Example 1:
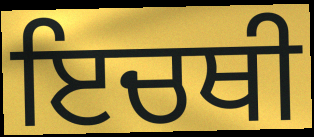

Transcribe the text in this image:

ਇਚਥੀ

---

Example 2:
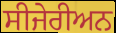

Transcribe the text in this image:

ਸੀਜੇਰੀਅਨ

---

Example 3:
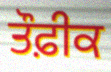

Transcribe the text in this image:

ਤੌਫ਼ੀਕ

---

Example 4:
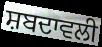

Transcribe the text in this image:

ਸ਼ਬਦਾਵਲੀ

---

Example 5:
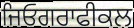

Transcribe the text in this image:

ਜਿਓਗਰਾਫੀਕਲ